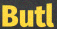
Butl